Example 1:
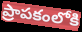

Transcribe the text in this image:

ప్రాపకంలోకి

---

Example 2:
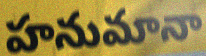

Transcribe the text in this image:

హనుమానా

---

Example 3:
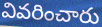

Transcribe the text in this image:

వివరించారు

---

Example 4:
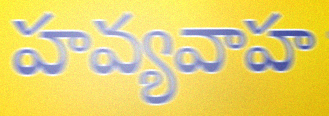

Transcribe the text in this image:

హవ్యవాహ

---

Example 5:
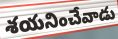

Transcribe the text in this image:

శయనించేవాడు